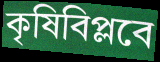
কৃষিবিপ্লবে